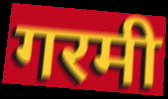
गरमी